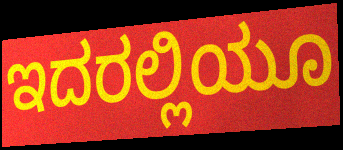
ಇದರಲ್ಲಿಯೂ